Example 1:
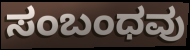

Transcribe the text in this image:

ಸಂಬಂಧವು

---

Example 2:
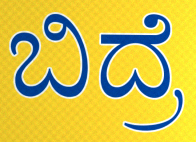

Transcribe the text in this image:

ಬಿದ್ರೆ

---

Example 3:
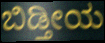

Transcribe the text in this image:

ಬಿಡ್ತೀಯ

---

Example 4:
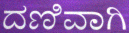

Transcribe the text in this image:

ದಣಿವಾಗಿ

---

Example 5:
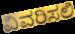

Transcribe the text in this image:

ವಿವರಿಸಲಿ